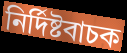
নিৰ্দিষ্টবাচক